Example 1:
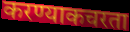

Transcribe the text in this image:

करण्याकचरता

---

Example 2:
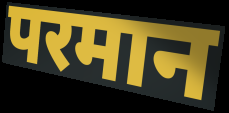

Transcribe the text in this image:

परमान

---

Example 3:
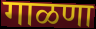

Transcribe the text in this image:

गाळणा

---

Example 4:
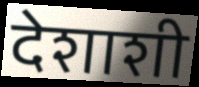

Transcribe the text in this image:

देशाशी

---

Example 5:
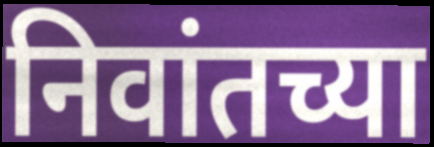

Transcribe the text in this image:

निवांतच्या